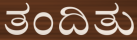
ತಂದಿತು